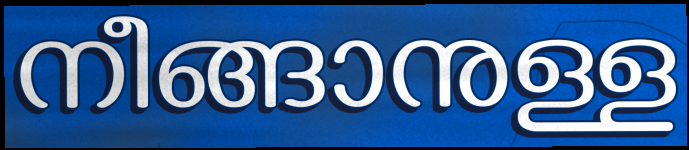
നീങ്ങാനുള്ള